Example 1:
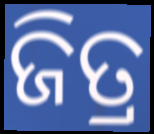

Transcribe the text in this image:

ଜିତ୍ର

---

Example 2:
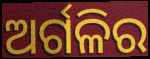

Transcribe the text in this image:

ଅର୍ଗଳିର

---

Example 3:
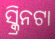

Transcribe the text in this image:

ସ୍କ୍ରିନଟା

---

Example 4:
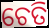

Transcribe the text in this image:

ଚେତି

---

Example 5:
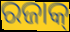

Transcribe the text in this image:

ରଜାକ୍